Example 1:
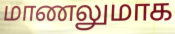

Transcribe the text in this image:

மாணலுமாக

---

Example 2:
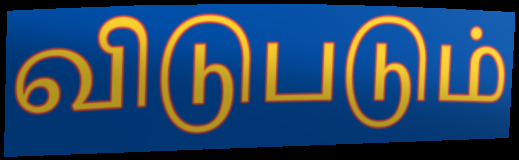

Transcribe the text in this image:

விடுபடும்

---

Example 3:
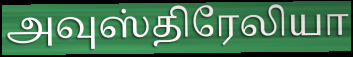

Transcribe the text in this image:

அவுஸ்திரேலியா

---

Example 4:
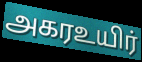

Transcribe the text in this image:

அகரஉயிர்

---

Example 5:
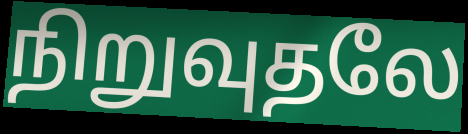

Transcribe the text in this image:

நிறுவுதலே